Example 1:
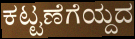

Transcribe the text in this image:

ಕಟ್ಟಣೆಗೆಯ್ದದ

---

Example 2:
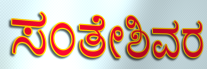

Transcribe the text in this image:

ಸಂತೇಶಿವರ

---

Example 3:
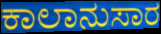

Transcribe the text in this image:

ಕಾಲಾನುಸಾರ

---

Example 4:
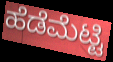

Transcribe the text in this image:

ಹೆಡೆಮೆಟ್ಟಿ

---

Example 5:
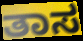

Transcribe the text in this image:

ತಾಸ